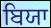
ਬਿਯਾ